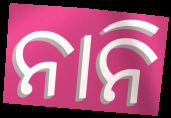
ନାନି